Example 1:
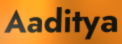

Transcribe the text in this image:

Aaditya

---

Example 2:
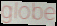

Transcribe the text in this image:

globe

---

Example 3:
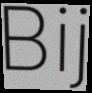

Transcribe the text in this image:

Bij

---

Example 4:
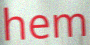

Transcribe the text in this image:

hem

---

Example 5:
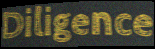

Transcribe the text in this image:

Diligence